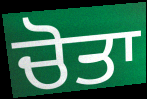
ਚੋਤਾ